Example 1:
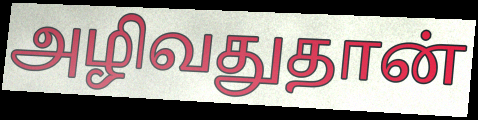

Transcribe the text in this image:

அழிவதுதான்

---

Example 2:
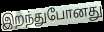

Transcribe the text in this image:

இறந்துபோனது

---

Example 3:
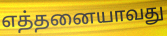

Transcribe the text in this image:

எத்தனையாவது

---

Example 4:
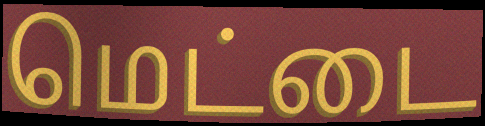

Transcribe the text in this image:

மெட்டை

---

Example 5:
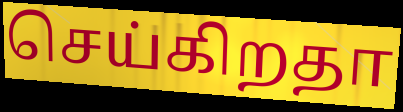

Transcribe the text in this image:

செய்கிறதா